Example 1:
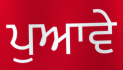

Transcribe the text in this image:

ਪੁਆਵੇ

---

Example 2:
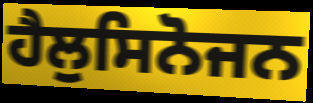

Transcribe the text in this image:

ਹੈਲੁਸਿਨੋਜਨ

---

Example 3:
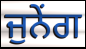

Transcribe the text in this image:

ਜੁਨੇਂਗ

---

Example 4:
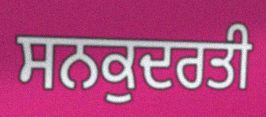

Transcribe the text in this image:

ਸਨਕੁਦਰਤੀ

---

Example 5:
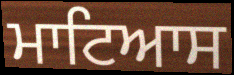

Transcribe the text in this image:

ਮਾਟਿਆਸ